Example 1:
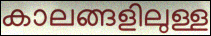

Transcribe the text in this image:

കാലങ്ങളിലുള്ള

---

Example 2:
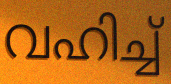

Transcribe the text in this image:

വഹിച്ച്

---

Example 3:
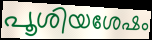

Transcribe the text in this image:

പൂശിയശേഷം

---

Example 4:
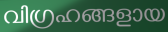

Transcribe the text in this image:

വിഗ്രഹങ്ങളായ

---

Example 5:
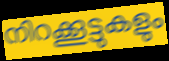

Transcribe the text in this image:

നിറക്കൂട്ടുകളും